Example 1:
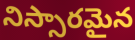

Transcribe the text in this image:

నిస్సారమైన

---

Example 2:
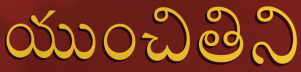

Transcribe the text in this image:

యుంచితిని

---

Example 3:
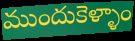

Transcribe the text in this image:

ముందుకెళ్ళాం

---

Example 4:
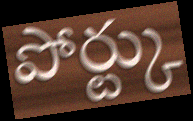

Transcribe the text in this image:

పోర్ట్కు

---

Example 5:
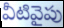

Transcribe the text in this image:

వీటివైపు